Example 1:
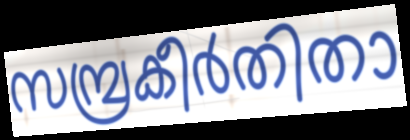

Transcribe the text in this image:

സമ്പ്രകീർതിതാ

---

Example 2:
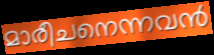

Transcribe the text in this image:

മാരീചനെന്നവൻ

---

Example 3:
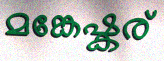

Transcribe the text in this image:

മങ്കേഷ്കര്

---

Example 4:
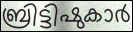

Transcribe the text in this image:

ബ്രിട്ടിഷുകാർ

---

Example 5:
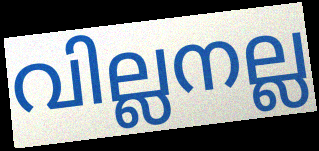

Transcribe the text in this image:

വില്ലനല്ല